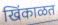
खिंकाळत